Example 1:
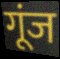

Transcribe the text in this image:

गूंज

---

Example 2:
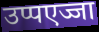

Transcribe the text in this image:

उप्पएज्जा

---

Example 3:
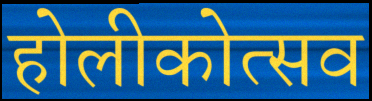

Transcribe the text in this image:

होलीकोत्सव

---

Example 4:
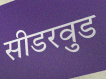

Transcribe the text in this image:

सीडरवुड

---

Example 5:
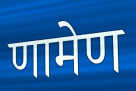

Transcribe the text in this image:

णामेण